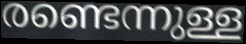
രണ്ടെന്നുള്ള